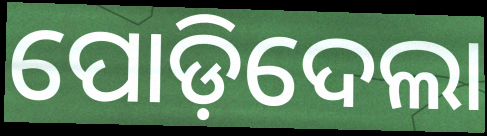
ପୋଡ଼ିଦେଲା